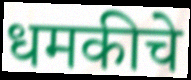
धमकीचे